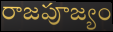
రాజపూజ్యం